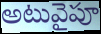
అటువైపూ